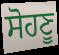
ਸੋਹਣੂ